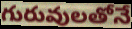
గురువులతోనే